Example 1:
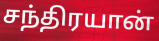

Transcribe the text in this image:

சந்திரயான்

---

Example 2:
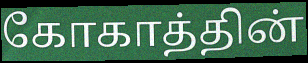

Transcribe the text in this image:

கோகாத்தின்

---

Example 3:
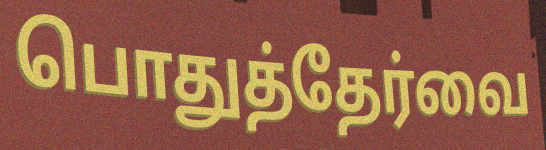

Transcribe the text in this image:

பொதுத்தேர்வை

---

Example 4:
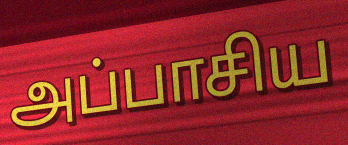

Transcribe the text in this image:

அப்பாசிய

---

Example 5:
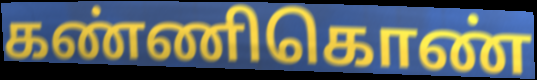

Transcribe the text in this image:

கண்ணிகொண்